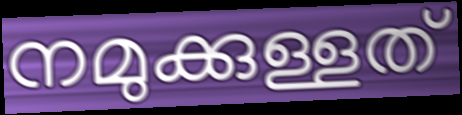
നമുക്കുള്ളത്